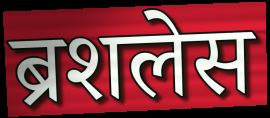
ब्रशलेस